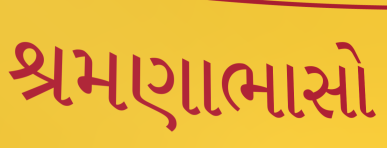
શ્રમણાભાસો